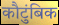
कौटुंबिक